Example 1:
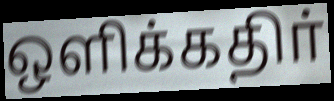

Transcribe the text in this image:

ஒளிக்கதிர்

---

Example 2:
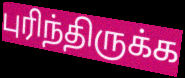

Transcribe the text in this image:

புரிந்திருக்க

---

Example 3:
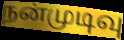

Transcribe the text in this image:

நன்முடிவு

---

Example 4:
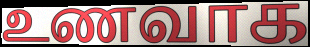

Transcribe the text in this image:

உணவாக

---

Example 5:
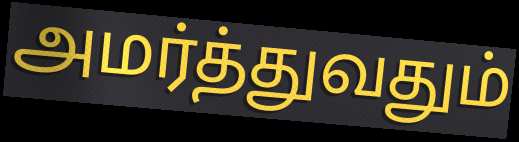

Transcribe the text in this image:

அமர்த்துவதும்